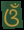
ଓଁ